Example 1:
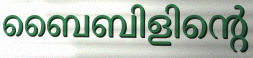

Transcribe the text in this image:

ബൈബിളിന്റെ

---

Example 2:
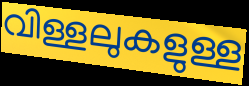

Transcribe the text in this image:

വിള്ളലുകളുള്ള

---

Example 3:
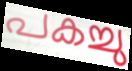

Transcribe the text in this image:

പകച്ചു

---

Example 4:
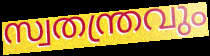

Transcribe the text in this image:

സ്വതന്ത്രവും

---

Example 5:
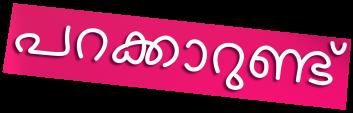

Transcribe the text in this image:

പറക്കാറുണ്ട്